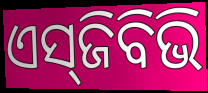
ଏସ୍‌ଜିବିଭି